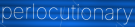
perlocutionary